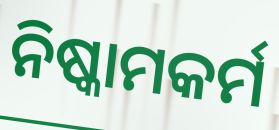
ନିଷ୍କାମକର୍ମ